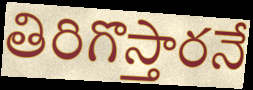
తిరిగొస్తారనే